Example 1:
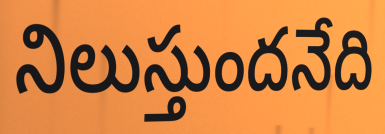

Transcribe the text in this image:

నిలుస్తుందనేది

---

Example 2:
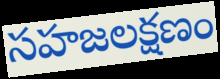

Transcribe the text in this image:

సహజలక్షణం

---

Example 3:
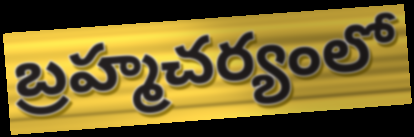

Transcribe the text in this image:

బ్రహ్మచర్యంలో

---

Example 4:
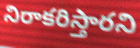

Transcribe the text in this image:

నిరాకరిస్తారని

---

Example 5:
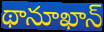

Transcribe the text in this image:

థానూఖాన్